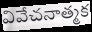
వివేచనాత్మక